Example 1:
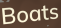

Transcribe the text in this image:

Boats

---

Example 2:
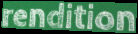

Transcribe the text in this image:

rendition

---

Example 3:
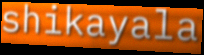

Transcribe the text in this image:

shikayala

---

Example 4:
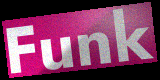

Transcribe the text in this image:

Funk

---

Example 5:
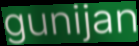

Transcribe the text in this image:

gunijan